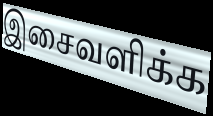
இசைவளிக்க